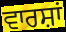
ਵਾਰਸ਼ਾਂ